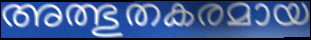
അത്ഭുതകരമായ